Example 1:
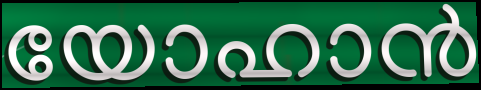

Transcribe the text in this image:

യോഹാൻ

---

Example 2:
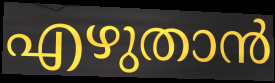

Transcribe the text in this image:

എഴുതാൻ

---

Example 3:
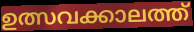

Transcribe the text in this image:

ഉത്സവക്കാലത്ത്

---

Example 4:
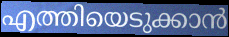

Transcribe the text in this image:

എത്തിയെടുക്കാൻ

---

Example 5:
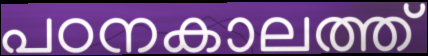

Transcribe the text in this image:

പഠനകാലത്ത്